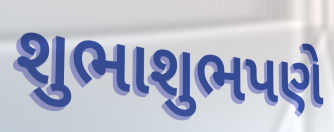
શુભાશુભપણે